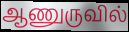
ஆணுருவில்